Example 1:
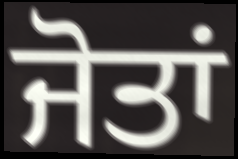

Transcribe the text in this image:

ਜੋਤਾਂ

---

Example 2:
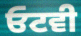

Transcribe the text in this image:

ਓਟਵੀ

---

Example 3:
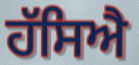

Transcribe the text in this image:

ਹੱਸਿਐ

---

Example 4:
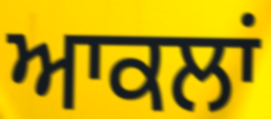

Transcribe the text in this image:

ਆਕਲਾਂ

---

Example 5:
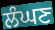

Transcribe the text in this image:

ਲੰਘਣ